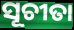
ସୂଚୀତା